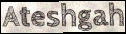
Ateshgah